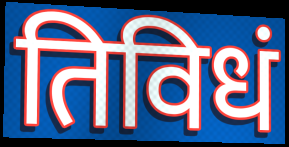
तिविधं